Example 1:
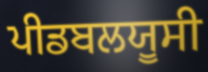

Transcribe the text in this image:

ਪੀਡਬਲਯੂਸੀ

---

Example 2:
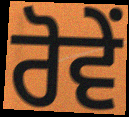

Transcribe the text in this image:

ਰੋਵੇਂ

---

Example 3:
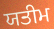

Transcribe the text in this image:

ਯਤੀਮ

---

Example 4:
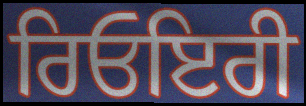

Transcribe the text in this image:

ਰਿਓਇਰੀ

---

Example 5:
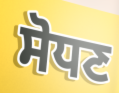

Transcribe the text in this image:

ਸੋਧਣ